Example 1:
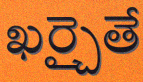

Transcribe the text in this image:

ఖర్చైతే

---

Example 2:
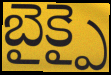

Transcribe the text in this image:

బైక్పై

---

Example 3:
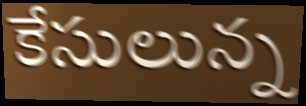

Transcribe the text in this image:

కేసులున్న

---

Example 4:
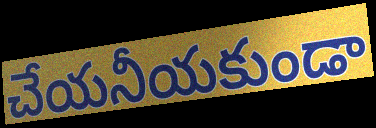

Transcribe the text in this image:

చేయనీయకుండా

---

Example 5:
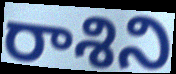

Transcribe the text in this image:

రాశిని